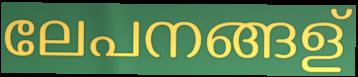
ലേപനങ്ങള്